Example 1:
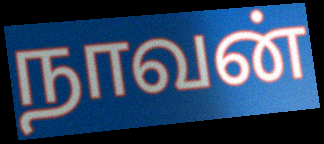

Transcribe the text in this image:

நாவன்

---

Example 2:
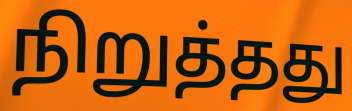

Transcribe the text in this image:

நிறுத்தது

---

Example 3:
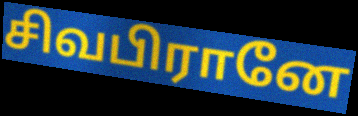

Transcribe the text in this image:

சிவபிரானே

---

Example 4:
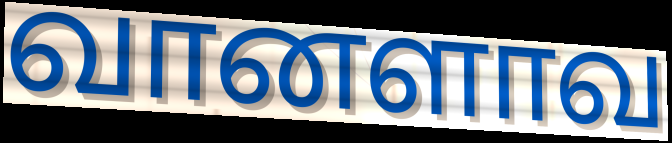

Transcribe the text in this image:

வானளாவ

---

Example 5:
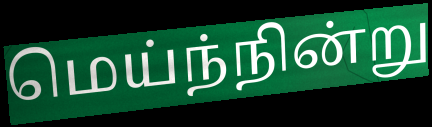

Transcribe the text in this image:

மெய்ந்நின்று